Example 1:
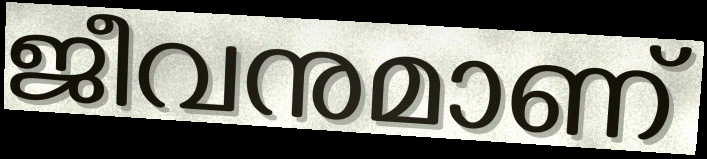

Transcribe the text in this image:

ജീവനുമാണ്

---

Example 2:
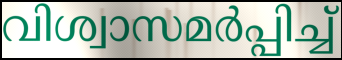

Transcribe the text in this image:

വിശ്വാസമർപ്പിച്ച്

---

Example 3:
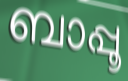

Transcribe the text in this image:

ബാപ്പൂ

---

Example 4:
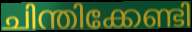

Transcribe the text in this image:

ചിന്തിക്കേണ്ടി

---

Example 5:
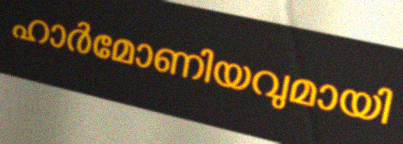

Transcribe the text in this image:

ഹാർമോണിയവുമായി